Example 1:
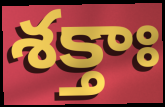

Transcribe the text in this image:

శక్తాః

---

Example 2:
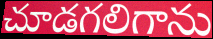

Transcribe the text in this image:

చూడగలిగాను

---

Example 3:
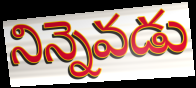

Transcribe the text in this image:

నిన్నెవడు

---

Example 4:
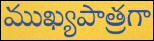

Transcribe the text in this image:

ముఖ్యపాత్రగా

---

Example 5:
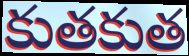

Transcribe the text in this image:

కుతకుత